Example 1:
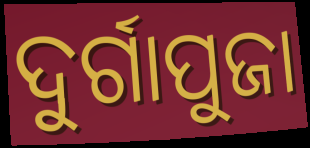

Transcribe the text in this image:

ଦୁର୍ଗାପୁଜା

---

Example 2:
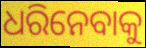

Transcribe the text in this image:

ଧରିନେବାକୁ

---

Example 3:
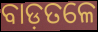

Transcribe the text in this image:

ବାଡ଼ତଳେ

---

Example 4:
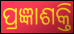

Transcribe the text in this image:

ପ୍ରଜ୍ଞାଶକ୍ତି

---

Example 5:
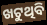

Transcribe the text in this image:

ଖଟୁଥିବି